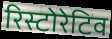
रिस्टोरेटिव